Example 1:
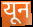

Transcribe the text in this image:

यून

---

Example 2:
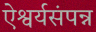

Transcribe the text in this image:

ऐश्वर्यसंपन्न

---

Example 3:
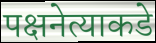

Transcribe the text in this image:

पक्षनेत्याकडे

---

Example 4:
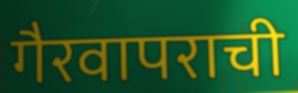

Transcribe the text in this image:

गैरवापराची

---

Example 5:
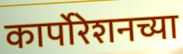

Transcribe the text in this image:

कार्पोरेशनच्या